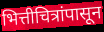
भित्तीचित्रांपासून